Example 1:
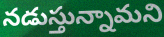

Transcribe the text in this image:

నడుస్తున్నామని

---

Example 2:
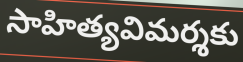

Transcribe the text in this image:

సాహిత్యవిమర్శకు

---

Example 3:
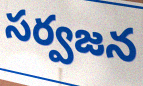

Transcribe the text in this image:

సర్వజన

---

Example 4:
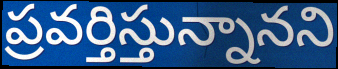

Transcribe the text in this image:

ప్రవర్తిస్తున్నానని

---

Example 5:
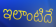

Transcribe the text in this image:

ఇలాంటిదే